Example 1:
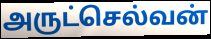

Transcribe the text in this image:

அருட்செல்வன்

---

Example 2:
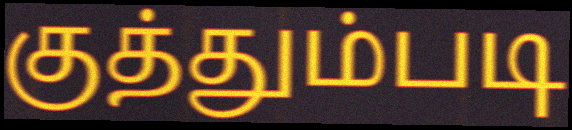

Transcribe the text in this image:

குத்தும்படி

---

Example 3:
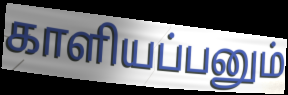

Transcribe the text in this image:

காளியப்பனும்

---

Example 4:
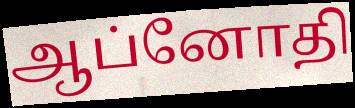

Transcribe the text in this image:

ஆப்னோதி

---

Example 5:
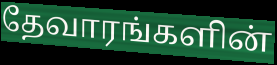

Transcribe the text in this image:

தேவாரங்களின்